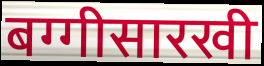
बग्गीसारखी